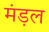
मंड़ल